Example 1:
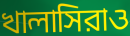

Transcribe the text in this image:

খালাসিরাও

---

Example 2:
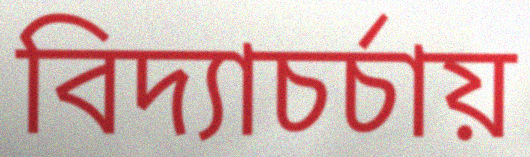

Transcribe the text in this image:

বিদ্যাচর্চায়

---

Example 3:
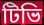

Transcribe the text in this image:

টিভি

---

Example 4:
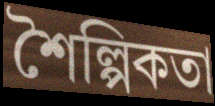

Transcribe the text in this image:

শৈল্পিকতা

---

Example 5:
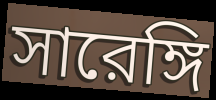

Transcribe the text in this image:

সারেঙ্গি